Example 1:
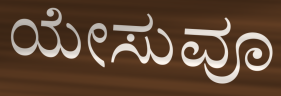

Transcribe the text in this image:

ಯೇಸುವೂ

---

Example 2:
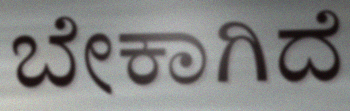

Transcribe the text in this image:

ಬೇಕಾಗಿದೆ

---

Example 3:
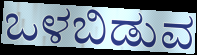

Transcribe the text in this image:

ಒಳಬಿಡುವ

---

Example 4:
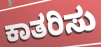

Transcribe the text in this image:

ಕಾತರಿಸು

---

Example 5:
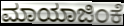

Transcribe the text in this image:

ಮಾಯಾಜಿಂಕೆ